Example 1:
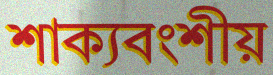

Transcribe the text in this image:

শাক্যবংশীয়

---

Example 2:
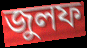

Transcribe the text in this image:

জুলফ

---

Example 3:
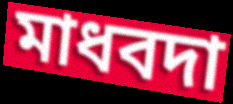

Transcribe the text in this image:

মাধবদা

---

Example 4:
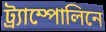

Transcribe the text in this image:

ট্র্যাম্পোলিনে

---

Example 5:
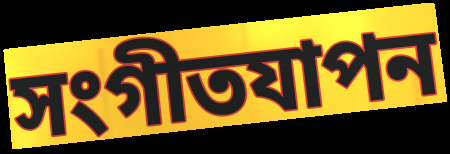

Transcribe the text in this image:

সংগীতযাপন